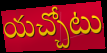
యచ్చోటు